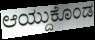
ಆಯ್ದುಕೊಂಡ